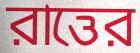
রাত্তের